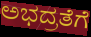
ಅಭದ್ರತೆಗೆ